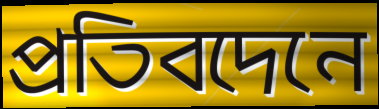
প্রতিবদেনে